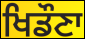
ਖਿਡੌਣਾ